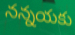
నన్నయకు